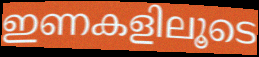
ഇണകളിലൂടെ